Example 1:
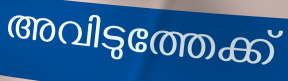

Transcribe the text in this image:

അവിടുത്തേക്ക്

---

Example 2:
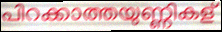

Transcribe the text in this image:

പിറക്കാത്തയുണ്ണികള്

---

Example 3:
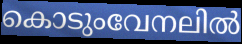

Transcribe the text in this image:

കൊടുംവേനലിൽ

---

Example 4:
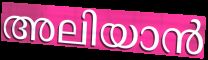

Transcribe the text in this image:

അലിയാൻ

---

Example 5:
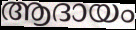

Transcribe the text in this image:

ആദായം